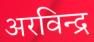
अरविन्द्र